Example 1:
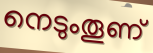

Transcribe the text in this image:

നെടുംതൂണ്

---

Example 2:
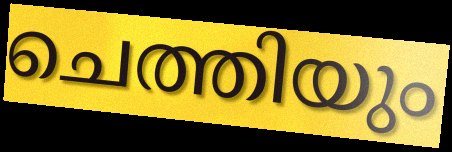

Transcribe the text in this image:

ചെത്തിയും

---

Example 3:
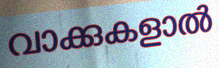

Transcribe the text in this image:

വാക്കുകളാൽ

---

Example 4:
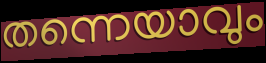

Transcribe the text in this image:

തന്നെയാവും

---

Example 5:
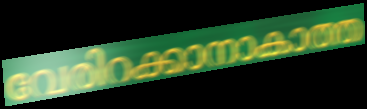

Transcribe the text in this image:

വേരിറക്കാനാകാത്ത